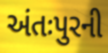
અંતઃપુરની